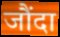
जौंदा